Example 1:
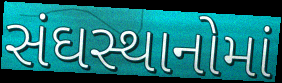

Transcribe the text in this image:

સંઘસ્થાનોમાં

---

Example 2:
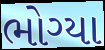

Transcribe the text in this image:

ભોગ્યા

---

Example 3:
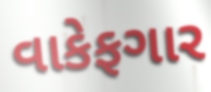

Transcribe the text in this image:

વાકેફગાર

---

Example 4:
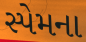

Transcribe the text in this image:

સ્પેમના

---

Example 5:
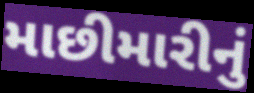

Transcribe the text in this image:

માછીમારીનું